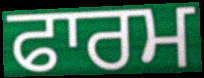
ਫਾਰਮ